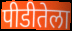
पीडीतेला